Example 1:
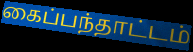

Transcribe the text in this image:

கைப்பந்தாட்டம்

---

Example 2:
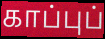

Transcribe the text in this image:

காப்புப்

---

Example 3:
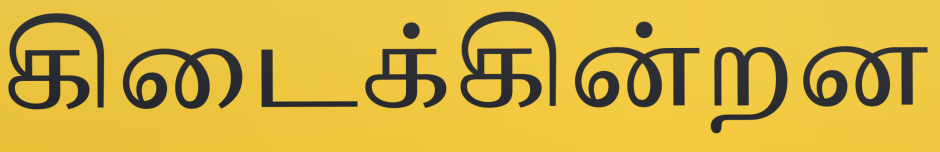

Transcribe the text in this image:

கிடைக்கின்றன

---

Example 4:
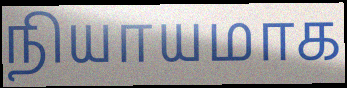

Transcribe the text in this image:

நியாயமாக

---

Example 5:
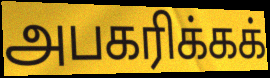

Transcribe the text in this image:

அபகரிக்கக்